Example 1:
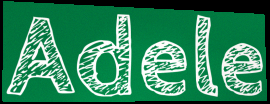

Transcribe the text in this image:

Adele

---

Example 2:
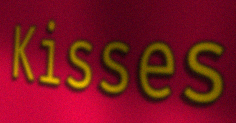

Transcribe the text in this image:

Kisses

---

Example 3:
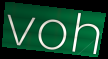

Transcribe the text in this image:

voh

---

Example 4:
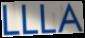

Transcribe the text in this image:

LLLA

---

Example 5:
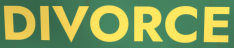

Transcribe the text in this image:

DIVORCE